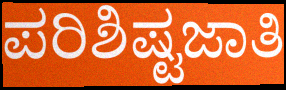
ಪರಿಶಿಷ್ಟಜಾತಿ